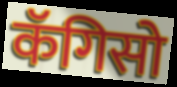
कॅगिसो